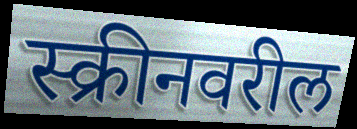
स्क्रीनवरील